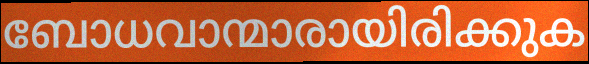
ബോധവാന്മാരായിരിക്കുക